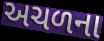
અચળના